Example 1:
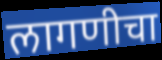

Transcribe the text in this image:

लागणीचा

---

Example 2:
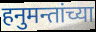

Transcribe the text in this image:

हनुमन्तांच्या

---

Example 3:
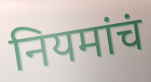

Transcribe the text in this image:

नियमांचं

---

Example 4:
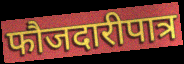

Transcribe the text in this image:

फौजदारीपात्र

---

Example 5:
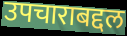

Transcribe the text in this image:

उपचाराबद्दल